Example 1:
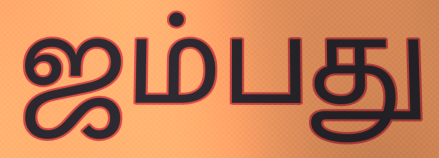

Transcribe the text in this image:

ஜம்பது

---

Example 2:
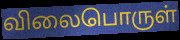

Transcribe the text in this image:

விலைபொருள்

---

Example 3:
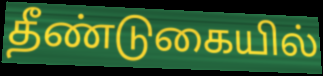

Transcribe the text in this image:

தீண்டுகையில்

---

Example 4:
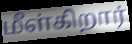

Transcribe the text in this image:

மீள்கிறார்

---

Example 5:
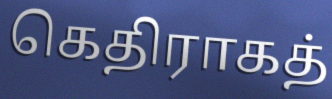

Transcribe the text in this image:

கெதிராகத்